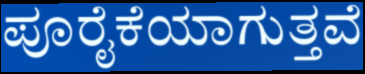
ಪೂರೈಕೆಯಾಗುತ್ತವೆ